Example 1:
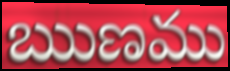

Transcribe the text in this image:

ఋణము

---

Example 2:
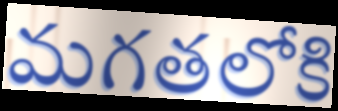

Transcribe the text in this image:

మగతలోకి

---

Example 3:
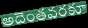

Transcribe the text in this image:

అదెంతవరకూ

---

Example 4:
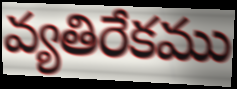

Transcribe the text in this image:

వ్యతిరేకము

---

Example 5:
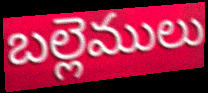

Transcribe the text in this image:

బల్లెములు